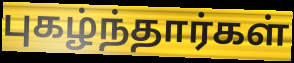
புகழ்ந்தார்கள்